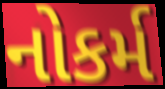
નોકર્મ